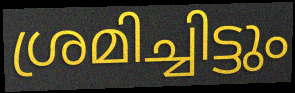
ശ്രമിച്ചിട്ടും